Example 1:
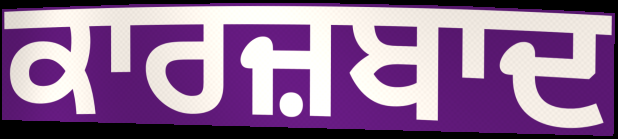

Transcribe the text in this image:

ਕਾਰਜ਼ਬਾਦ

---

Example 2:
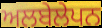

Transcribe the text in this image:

ਅਲਬੇਲੇਪਨ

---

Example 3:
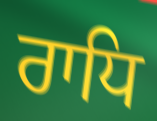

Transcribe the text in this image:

ਰਾਧਿ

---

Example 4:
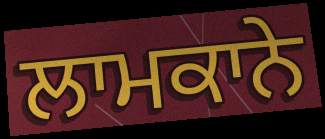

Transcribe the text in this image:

ਲਾਮਕਾਨੇ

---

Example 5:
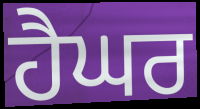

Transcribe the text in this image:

ਹੈਘਰ